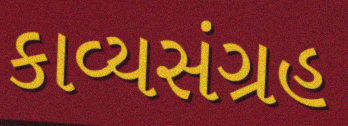
કાવ્યસંગ્રહ